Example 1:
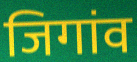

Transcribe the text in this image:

जिगांव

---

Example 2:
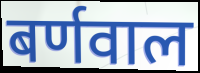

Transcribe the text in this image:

बर्णवाल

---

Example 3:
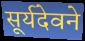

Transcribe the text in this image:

सूर्यदेवने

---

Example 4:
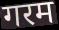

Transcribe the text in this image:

गरम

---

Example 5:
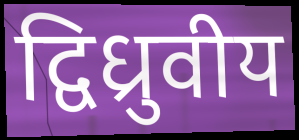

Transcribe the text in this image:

द्विध्रुवीय